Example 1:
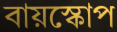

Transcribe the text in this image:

বায়স্কোপ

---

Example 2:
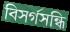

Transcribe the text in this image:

বিসর্গসন্ধি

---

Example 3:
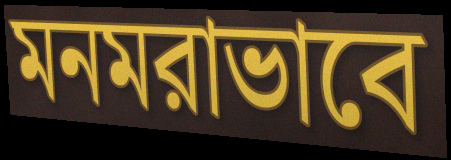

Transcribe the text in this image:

মনমরাভাবে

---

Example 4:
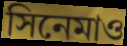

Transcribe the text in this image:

সিনেমাও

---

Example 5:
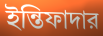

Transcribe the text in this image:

ইন্তিফাদার